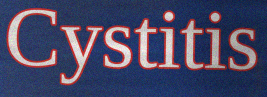
Cystitis